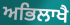
ਅਭਿਲਾਖੈ